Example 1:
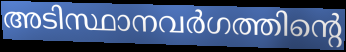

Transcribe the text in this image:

അടിസ്ഥാനവർഗത്തിന്റെ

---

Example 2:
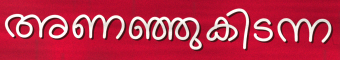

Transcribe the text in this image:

അണഞ്ഞുകിടന്ന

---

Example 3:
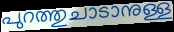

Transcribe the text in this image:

പുറത്തുചാടാനുള്ള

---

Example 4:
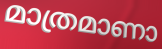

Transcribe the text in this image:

മാത്രമാണാ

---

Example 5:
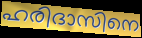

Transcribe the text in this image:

ഹരിദാസിനെ